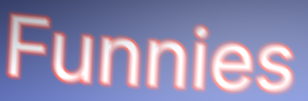
Funnies